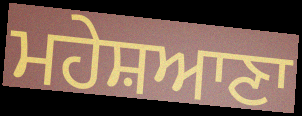
ਮਹੇਸ਼ਆਣਾ